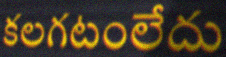
కలగటంలేదు